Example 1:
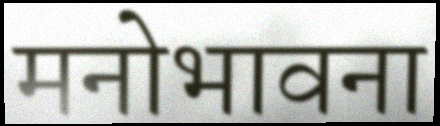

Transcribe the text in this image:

मनोभावना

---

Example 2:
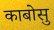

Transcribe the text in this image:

काबोसु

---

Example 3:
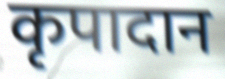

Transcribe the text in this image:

कृपादान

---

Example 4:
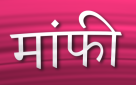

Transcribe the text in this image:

मांफी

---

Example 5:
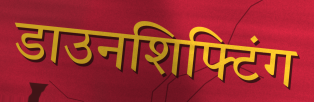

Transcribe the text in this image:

डाउनशिफ्टिंग